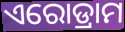
ଏରୋଡ୍ରାମ